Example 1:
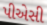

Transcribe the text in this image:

પીએસી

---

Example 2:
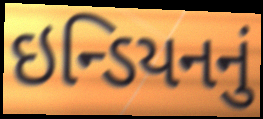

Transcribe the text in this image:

ઇન્ડિયનનું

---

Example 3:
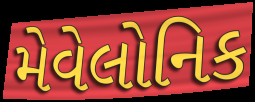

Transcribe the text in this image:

મેવેલોનિક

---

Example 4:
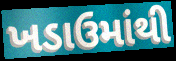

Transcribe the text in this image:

ખડાઉમાંથી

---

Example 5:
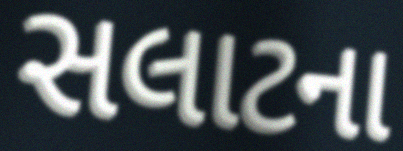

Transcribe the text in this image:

સલાટના